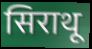
सिराथू